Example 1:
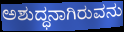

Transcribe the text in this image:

ಅಶುದ್ಧನಾಗಿರುವನು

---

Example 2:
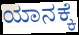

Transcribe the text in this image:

ಯಾನಕ್ಕೆ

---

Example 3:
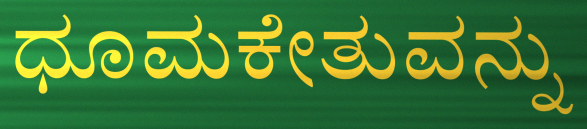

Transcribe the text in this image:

ಧೂಮಕೇತುವನ್ನು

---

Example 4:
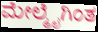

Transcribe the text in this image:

ಮೇಲ್ಮೈಗಿಂತ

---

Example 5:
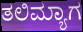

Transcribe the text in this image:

ತಲಿಮ್ಯಾಗ